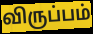
விருப்பம்